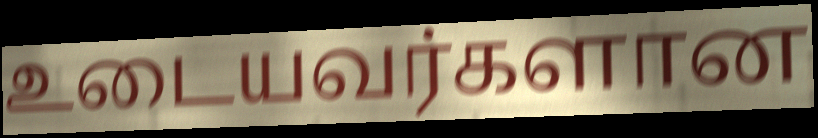
உடையவர்களான